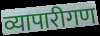
व्यापारीगण